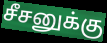
சீசனுக்கு